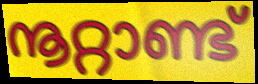
നൂറ്റാണ്ട്